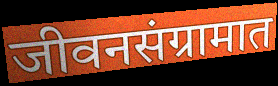
जीवनसंग्रामात